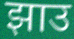
झाउ